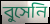
বুসেনি